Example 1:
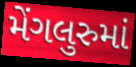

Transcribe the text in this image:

મેંગલુરુમાં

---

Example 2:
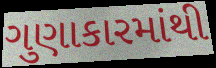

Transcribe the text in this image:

ગુણાકારમાંથી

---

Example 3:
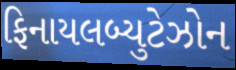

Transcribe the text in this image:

ફિનાયલબ્યુટેઝોન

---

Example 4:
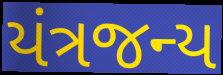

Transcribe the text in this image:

યંત્રજન્ય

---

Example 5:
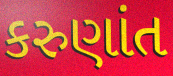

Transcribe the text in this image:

કરુણાંત